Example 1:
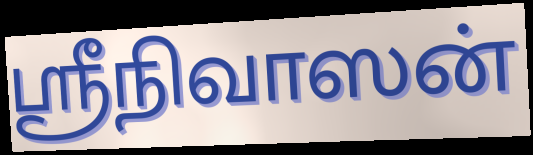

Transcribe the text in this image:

ஸ்ரீநிவாஸன்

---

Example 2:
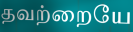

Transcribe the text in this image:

தவற்றையே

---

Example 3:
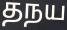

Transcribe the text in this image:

தநய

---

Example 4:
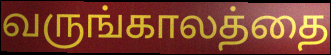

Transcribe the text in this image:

வருங்காலத்தை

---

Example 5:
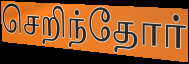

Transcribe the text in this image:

செறிந்தோர்